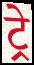
ट्रे